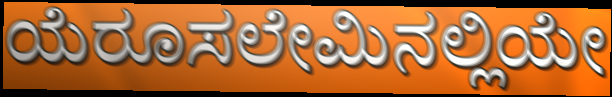
ಯೆರೂಸಲೇಮಿನಲ್ಲಿಯೇ